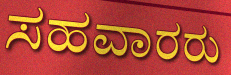
ಸಹವಾರರು